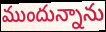
ముందున్నాను